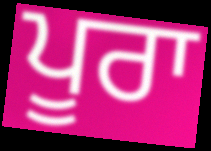
ਪੂਰਾ